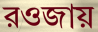
রওজায়